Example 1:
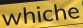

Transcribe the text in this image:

whiche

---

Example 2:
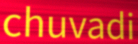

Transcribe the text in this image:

chuvadi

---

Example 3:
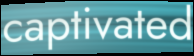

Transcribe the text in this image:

captivated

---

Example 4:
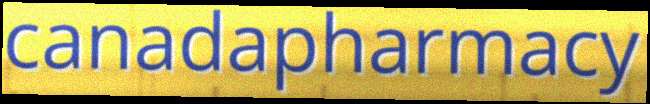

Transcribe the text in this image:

canadapharmacy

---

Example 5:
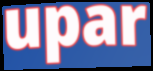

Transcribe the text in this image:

upar